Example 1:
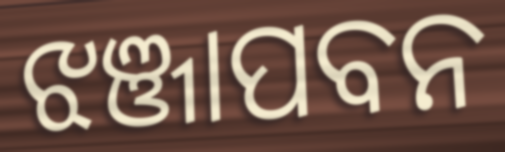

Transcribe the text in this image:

ଝଞ୍ଜାପବନ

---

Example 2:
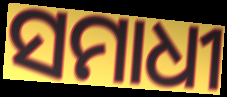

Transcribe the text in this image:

ସମାଧୀ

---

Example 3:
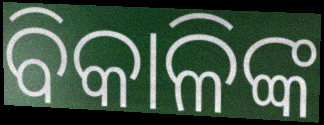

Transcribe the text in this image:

ବିକାଳିଙ୍କ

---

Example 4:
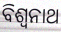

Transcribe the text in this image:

ବିଶ୍ୱନାଥ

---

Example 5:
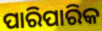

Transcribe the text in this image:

ପାରିପାରିକ